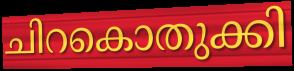
ചിറകൊതുക്കി